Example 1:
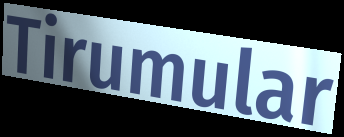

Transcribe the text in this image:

Tirumular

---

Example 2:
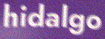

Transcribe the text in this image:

hidalgo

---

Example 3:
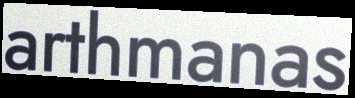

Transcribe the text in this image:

arthmanas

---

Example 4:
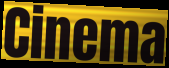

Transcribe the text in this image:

Cinema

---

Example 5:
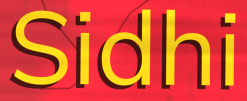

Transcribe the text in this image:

Sidhi